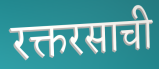
रक्तरसाची